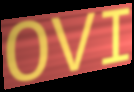
OVI